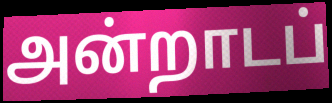
அன்றாடப்